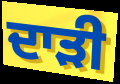
ਦਾੜੀ